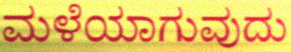
ಮಳೆಯಾಗುವುದು